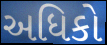
અધિકો